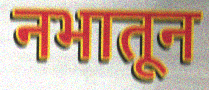
नभातून